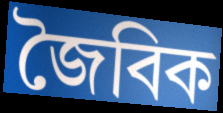
জৈবিক